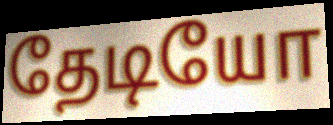
தேடியோ